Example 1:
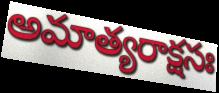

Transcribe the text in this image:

అమాత్యరాక్షసః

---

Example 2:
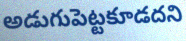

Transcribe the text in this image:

అడుగుపెట్టకూడదని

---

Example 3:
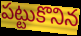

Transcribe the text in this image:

పట్టుకొనిన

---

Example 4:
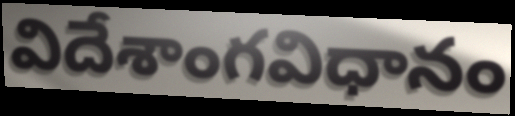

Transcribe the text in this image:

విదేశాంగవిధానం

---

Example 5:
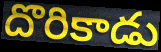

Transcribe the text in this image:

దొరికాడు